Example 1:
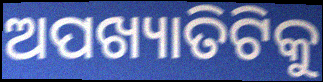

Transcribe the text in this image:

ଅପଖ୍ୟାତିଟିକୁ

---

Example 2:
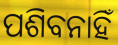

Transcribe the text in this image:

ପଶିବନାହିଁ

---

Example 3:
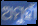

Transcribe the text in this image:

ଅମୁହାଁ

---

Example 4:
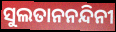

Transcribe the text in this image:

ସୁଲତାନନନ୍ଦିନୀ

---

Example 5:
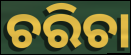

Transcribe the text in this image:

ଚରିଚା